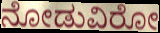
ನೋಡುವಿರೋ